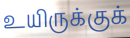
உயிருக்குக்